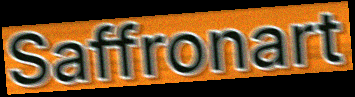
Saffronart